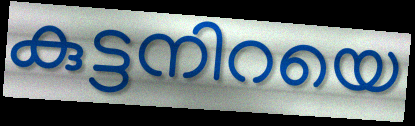
കുട്ടനിറയെ